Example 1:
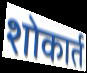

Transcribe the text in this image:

शोकार्त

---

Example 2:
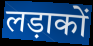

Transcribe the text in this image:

लड़ाकों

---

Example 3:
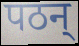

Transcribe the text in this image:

पठन्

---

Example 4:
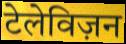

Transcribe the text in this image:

टेलेविज़न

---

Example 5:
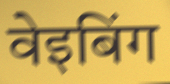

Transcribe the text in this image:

वेइबिंग